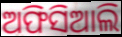
ଅଫିସିଆଲି